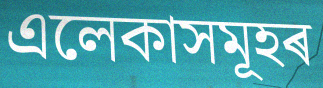
এলেকাসমূহৰ